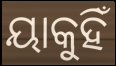
ୟାକୁହିଁ